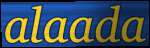
alaada